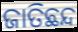
ଜାତିଛନ୍ଦ